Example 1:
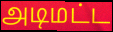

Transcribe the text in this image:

அடிமட்ட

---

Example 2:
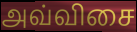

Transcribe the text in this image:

அவ்விசை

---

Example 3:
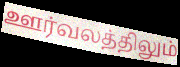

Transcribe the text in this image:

ஊர்வலத்திலும்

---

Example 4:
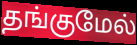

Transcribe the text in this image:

தங்குமேல்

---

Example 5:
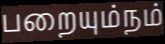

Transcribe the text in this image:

பறையும்நம்